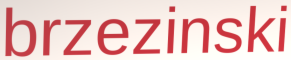
brzezinski